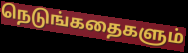
நெடுங்கதைகளும்